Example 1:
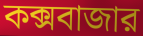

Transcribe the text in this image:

কক্সবাজার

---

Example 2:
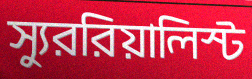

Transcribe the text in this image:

স্যুররিয়ালিস্ট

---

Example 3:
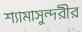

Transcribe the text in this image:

শ্যামাসুন্দরীর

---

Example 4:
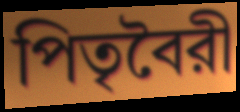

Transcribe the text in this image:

পিতৃবৈরী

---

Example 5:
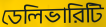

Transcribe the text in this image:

ডেলিভারিটি